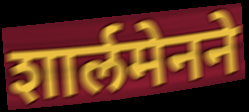
शार्लमेनने